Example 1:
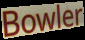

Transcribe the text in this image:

Bowler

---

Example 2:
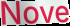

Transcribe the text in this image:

Nove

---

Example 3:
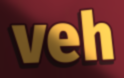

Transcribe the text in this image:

veh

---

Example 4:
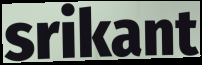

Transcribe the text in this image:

srikant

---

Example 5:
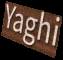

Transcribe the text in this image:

Yaghi